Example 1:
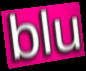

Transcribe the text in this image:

blu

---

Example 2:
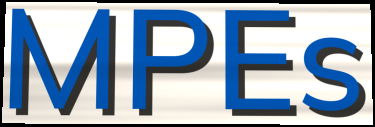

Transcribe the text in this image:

MPEs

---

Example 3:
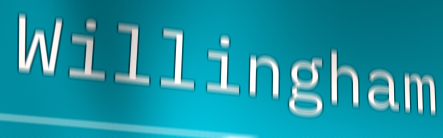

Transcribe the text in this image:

Willingham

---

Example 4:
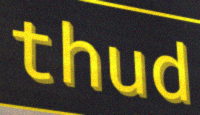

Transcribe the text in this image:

thud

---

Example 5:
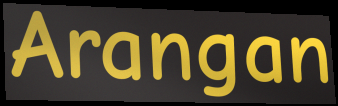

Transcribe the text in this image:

Arangan